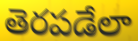
తెరపడేలా